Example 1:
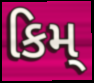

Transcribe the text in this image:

કિમ્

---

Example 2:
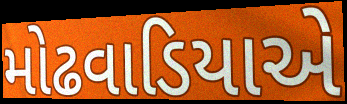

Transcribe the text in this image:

મોઢવાડિયાએ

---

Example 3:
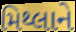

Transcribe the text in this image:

મિથ્લાને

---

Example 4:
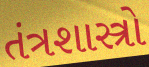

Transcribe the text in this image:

તંત્રશાસ્ત્રો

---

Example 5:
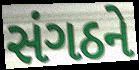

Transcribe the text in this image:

સંગઠને